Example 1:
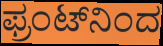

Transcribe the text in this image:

ಫ್ರಂಟ್‌ನಿಂದ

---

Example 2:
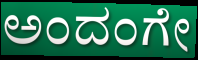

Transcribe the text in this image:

ಅಂದಂಗೇ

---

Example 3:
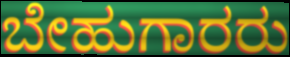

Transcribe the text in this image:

ಬೇಹುಗಾರರು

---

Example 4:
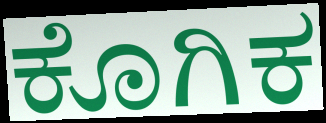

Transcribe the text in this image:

ಕೊಗಿಕ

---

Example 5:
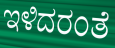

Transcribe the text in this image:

ಇಳಿದರಂತೆ